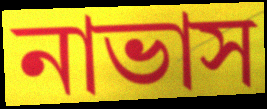
নাভাস